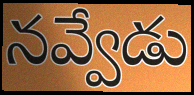
నవ్వేడు